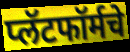
प्लॅटफॉर्मचे